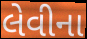
લેવીના